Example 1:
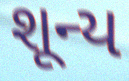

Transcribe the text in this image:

શૂન્ય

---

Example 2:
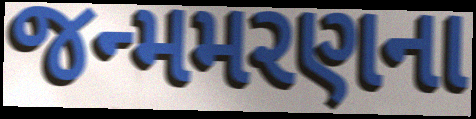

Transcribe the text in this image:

જન્મમરણના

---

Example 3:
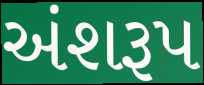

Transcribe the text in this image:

અંશરૂપ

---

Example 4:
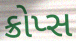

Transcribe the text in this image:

ક્રોપ્સ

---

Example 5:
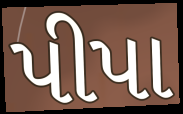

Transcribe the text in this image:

પીપા